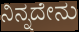
ನಿನ್ನದೇನು